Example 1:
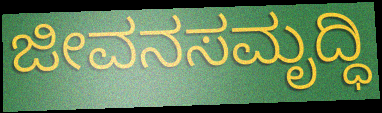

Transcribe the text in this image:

ಜೀವನಸಮೃದ್ಧಿ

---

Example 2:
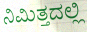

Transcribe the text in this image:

ನಿಮಿತ್ತದಲ್ಲಿ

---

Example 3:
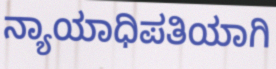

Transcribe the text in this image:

ನ್ಯಾಯಾಧಿಪತಿಯಾಗಿ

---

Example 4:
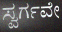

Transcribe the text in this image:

ಸ್ವರ್ಗವೇ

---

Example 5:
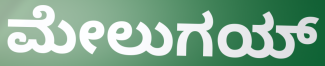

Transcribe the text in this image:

ಮೇಲುಗಯ್